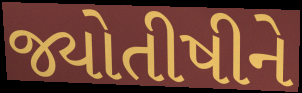
જ્યોતીષીને